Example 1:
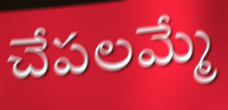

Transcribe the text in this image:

చేపలమ్మే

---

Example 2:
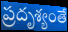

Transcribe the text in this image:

ప్రదృశ్యంతే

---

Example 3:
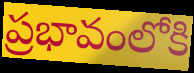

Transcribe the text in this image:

ప్రభావంలోకి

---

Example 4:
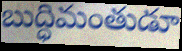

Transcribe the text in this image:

బుద్ధిమంతుడూ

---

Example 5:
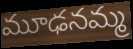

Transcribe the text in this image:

మూఢనమ్మ